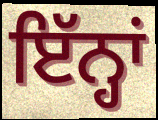
ਇੱਨ੍ਹਾਂ